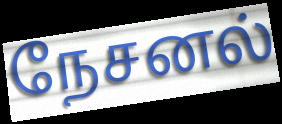
நேசனல்